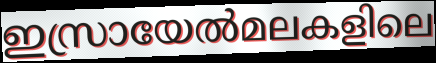
ഇസ്രായേൽമലകളിലെ